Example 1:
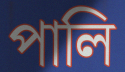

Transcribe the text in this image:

পালি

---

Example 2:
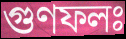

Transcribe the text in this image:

গুণফলঃ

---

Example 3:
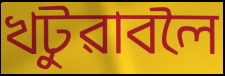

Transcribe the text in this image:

খটুৱাবলৈ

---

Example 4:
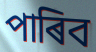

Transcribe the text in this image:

পাৰিব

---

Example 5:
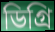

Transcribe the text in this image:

ডিগ্ৰি